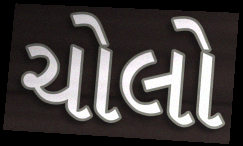
ચોલો